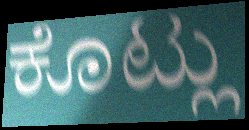
ಕೊಟ್ಲು